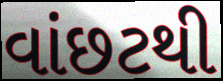
વાંછટથી